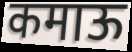
कमाऊ